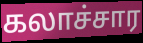
கலாச்சார